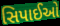
સિપાઈઓ